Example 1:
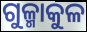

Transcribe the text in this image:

ଗୁଳ୍ମାକୁଳ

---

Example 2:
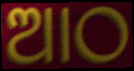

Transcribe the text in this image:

ଆଠ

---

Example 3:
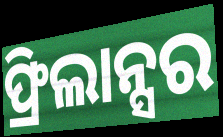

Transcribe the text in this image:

ଫ୍ରିଲାନ୍ସର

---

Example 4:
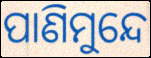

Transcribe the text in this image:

ପାଣିମୁନ୍ଦେ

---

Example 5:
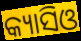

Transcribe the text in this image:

କ୍ୟାସିଓ